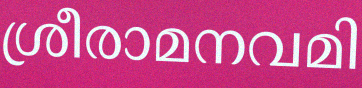
ശ്രീരാമനവമി